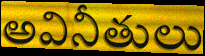
అవినీతులు